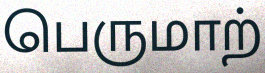
பெருமாற்